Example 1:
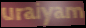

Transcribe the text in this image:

uraiyam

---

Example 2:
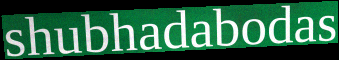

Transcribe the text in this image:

shubhadabodas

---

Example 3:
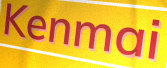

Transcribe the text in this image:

Kenmai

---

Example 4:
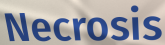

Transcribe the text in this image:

Necrosis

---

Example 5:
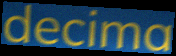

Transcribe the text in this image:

decima